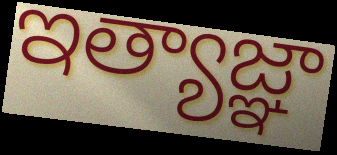
ఇత్యాజ్ఞా